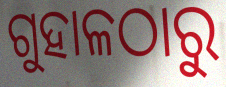
ଗୁହାଳଠାରୁ